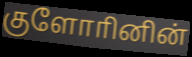
குளோரினின்